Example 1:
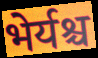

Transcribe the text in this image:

भेर्यश्च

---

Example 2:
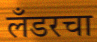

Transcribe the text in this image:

लँडरचा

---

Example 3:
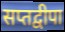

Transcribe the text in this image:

सप्तद्वीपा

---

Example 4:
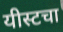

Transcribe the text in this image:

यीस्टचा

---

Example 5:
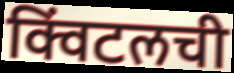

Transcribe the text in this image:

क्विंटलची